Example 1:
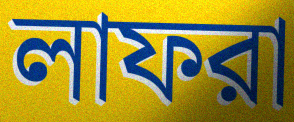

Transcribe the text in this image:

লাফরা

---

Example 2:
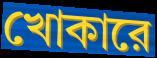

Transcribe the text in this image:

খোকারে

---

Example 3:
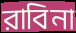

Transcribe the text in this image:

রাবিনা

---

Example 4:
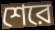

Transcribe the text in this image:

শেরে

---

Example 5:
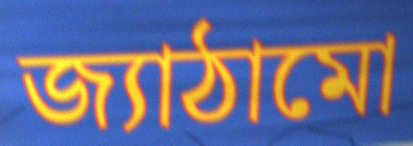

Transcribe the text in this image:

জ্যাঠামো